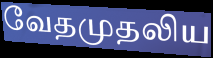
வேதமுதலிய